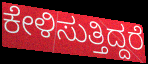
ಕೇಳಿಸುತ್ತಿದ್ದರೆ